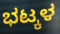
ಭಟ್ಕಳ